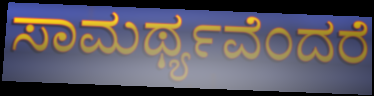
ಸಾಮರ್ಥ್ಯವೆಂದರೆ